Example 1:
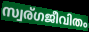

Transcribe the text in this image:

സ്വര്ഗജീവിതം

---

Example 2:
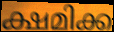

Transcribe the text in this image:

ക്ഷമിക്ക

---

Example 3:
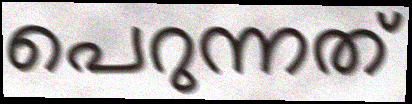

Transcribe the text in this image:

പെറുന്നത്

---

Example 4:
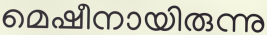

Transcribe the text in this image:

മെഷീനായിരുന്നു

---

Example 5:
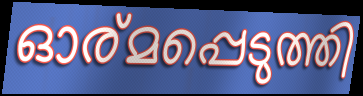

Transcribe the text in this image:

ഓര്മപ്പെടുത്തി